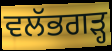
ਵਲੱਭਗੜ੍ਹ